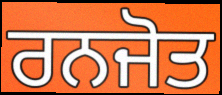
ਰਨਜੋਤ